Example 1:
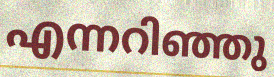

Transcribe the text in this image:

എന്നറിഞ്ഞു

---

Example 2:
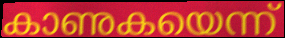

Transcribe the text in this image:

കാണുകയെന്ന്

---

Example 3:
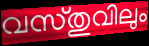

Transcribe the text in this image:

വസ്തുവിലും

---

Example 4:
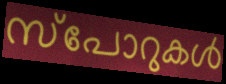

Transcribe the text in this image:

സ്പോറുകൾ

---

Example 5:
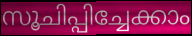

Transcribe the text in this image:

സൂചിപ്പിച്ചേക്കാം